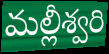
మల్లీశ్వరి